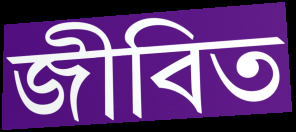
জীবিত